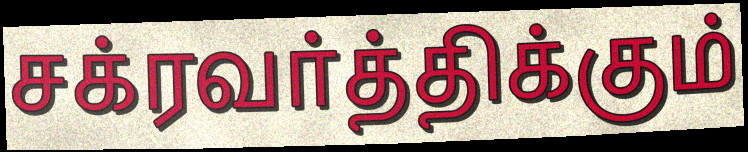
சக்ரவர்த்திக்கும்